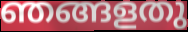
ഞങ്ങളതു